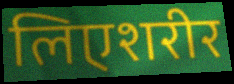
लिएशरीर